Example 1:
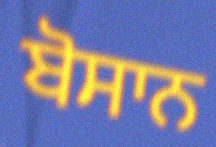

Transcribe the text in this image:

ਬੋਸਾਨ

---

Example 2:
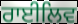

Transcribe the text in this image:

ਰਾਈਲਿਵ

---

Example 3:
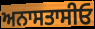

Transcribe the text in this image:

ਅਨਾਸਤਾਸੀਓ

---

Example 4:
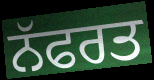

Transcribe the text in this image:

ਨੱਫਰਤ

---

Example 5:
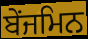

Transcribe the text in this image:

ਬੇਂਜਮਿਨ